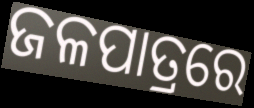
ଜଳପାତ୍ରରେ